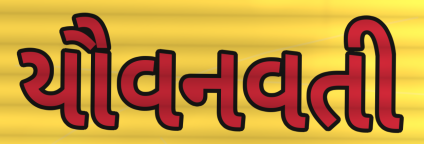
યૌવનવતી